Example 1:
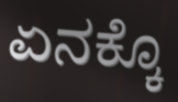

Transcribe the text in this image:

ಏನಕ್ಕೊ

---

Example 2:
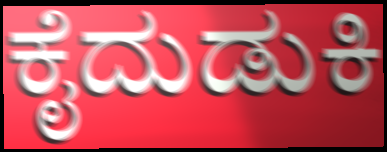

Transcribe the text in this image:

ಕೈದುಡುಕಿ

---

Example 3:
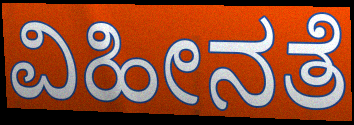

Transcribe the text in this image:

ವಿಹೀನತೆ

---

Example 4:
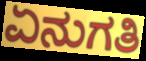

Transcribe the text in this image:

ಏನುಗತಿ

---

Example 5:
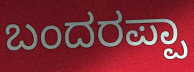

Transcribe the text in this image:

ಬಂದರಪ್ಪಾ